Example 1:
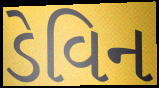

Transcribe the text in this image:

ડેવિન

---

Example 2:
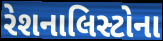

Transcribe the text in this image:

રેશનાલિસ્ટોના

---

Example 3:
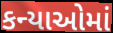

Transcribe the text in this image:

કન્યાઓમાં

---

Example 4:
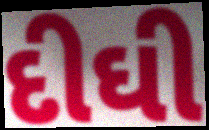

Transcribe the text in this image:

દીઘી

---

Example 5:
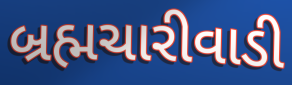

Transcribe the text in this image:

બ્રહ્મચારીવાડી